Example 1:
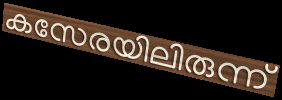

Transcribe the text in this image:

കസേരയിലിരുന്ന്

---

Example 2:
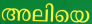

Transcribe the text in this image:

അലിയെ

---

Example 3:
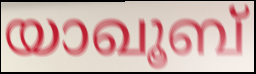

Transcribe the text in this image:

യാഖൂബ്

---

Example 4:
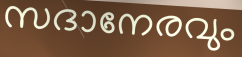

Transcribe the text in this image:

സദാനേരവും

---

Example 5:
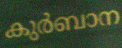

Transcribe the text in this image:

കുർബാന